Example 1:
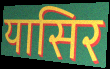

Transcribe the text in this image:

यासिर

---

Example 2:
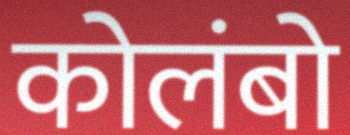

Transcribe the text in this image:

कोलंबो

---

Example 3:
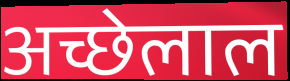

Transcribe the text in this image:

अच्छेलाल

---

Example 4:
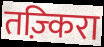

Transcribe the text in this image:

तज़्किरा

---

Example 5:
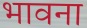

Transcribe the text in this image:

भावना